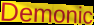
Demonic